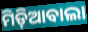
ମିଡ଼ିଆବାଲା